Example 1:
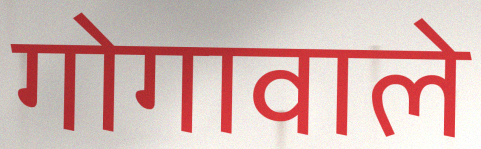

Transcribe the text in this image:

गोगावाले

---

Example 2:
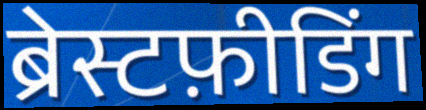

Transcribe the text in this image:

ब्रेस्टफ़ीडिंग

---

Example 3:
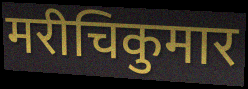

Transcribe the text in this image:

मरीचिकुमार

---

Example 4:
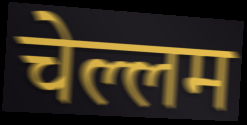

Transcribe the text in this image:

चेल्लम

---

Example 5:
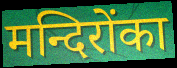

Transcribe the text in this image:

मन्दिरोंका